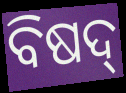
ବିଷଦ୍